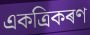
একত্ৰিকৰণ